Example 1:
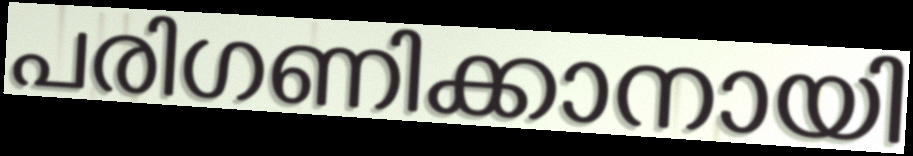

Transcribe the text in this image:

പരിഗണിക്കാനായി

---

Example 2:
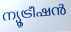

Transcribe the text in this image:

ന്യൂട്രീഷൻ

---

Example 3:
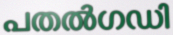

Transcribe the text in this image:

പതൽഗഡി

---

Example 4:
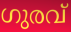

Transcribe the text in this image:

ഗുരവ്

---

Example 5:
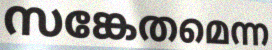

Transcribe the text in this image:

സങ്കേതമെന്ന